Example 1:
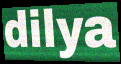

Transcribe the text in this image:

dilya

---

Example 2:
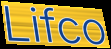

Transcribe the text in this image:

Lifco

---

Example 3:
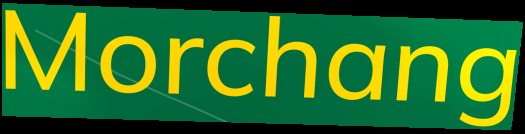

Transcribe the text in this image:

Morchang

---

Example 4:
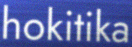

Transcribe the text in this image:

hokitika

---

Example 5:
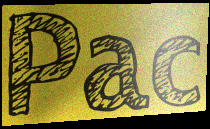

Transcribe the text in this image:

Pac